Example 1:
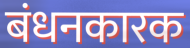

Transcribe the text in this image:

बंधनकारक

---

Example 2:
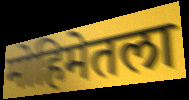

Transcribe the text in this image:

मोहिमेतला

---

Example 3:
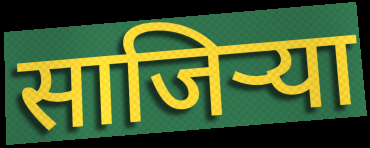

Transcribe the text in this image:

साजिर्‍या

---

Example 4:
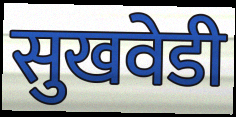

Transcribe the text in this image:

सुखवेडी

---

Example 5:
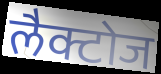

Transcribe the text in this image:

लैक्टोज